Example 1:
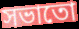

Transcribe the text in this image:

সভাতো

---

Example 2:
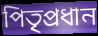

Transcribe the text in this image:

পিতৃপ্ৰধান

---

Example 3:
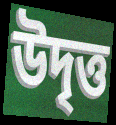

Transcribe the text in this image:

উদৃত্ত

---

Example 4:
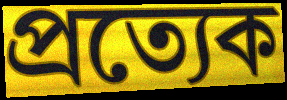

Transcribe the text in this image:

প্ৰত্য়েক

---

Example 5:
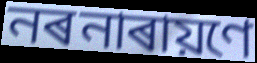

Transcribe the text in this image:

নৰনাৰায়ণে